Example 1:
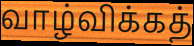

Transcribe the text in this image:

வாழ்விக்கத்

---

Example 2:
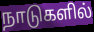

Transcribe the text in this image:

நாடுகளில்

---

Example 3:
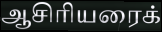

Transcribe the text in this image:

ஆசிரியரைக்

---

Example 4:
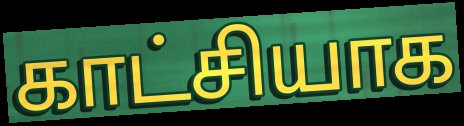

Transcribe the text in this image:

காட்சியாக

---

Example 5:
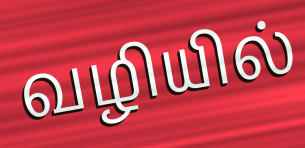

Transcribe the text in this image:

வழியில்